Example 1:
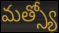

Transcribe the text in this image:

మత్స్యో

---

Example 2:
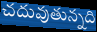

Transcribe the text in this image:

చదువుతున్నది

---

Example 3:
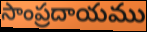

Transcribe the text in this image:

సాంప్రదాయము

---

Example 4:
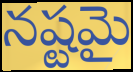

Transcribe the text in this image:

నష్టమై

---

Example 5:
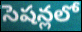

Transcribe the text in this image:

సెషన్లలో